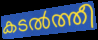
കടൽത്തീ